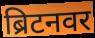
ब्रिटनवर